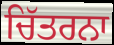
ਚਿੱਤਰਨਾ